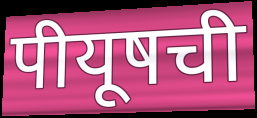
पीयूषची